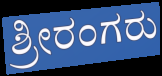
ಶ್ರೀರಂಗರು